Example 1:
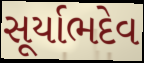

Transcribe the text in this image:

સૂર્યાભદેવ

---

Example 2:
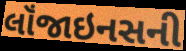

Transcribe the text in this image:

લૉંજાઇનસની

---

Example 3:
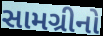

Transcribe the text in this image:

સામગ્રીનો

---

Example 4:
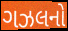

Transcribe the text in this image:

ગઝલનો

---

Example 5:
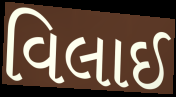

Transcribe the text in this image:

વિલાઈ